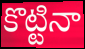
కొట్టినా